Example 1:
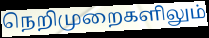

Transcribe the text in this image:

நெறிமுறைகளிலும்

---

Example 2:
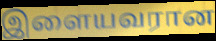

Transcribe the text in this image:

இளையவரான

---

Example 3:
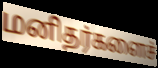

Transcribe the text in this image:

மனிதர்களைச்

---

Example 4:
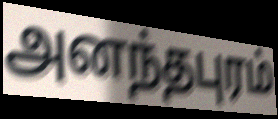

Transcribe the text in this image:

அனந்தபுரம்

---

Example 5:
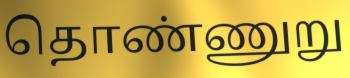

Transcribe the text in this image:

தொண்ணுறு